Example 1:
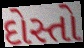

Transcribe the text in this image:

દોસ્તો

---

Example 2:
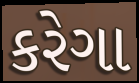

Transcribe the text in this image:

કરેગા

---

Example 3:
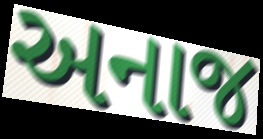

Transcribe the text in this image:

અનાજ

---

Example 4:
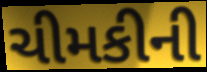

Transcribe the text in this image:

ચીમકીની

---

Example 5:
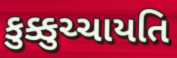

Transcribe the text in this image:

કુક્કુચ્ચાયતિ